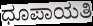
ಧೂಪಾಯತಿ